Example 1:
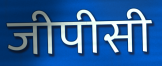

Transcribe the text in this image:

जीपीसी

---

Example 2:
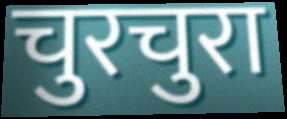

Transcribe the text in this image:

चुरचुरा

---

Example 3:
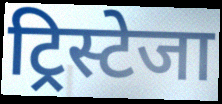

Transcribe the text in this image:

ट्रिस्टेजा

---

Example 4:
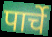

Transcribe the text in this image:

पार्चे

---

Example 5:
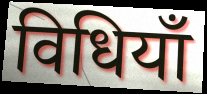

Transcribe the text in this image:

विधियाँ